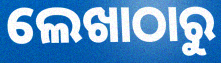
ଲେଖାଠାରୁ